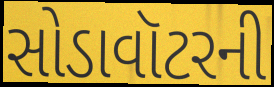
સોડાવૉટરની